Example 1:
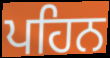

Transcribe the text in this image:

ਪਹਿਨ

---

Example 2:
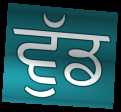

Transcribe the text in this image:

ਵੁੱਡ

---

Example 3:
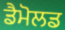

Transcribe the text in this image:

ਡੈਮੋਲਡ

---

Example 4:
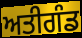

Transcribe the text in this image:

ਅਤੀਗੰਡ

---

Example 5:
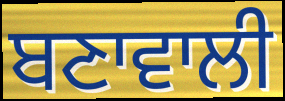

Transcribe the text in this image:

ਬਣਾਵਾਲੀ